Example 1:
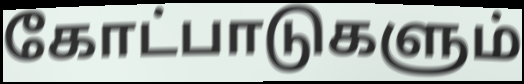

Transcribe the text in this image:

கோட்பாடுகளும்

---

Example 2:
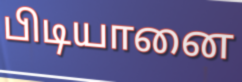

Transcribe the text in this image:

பிடியானை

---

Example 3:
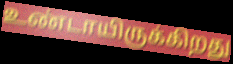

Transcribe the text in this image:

உண்டாயிருக்கிறது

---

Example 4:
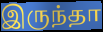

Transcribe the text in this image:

இருந்தா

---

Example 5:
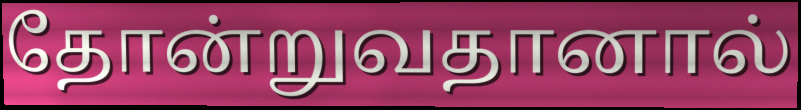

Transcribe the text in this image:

தோன்றுவதானால்